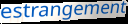
estrangement